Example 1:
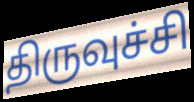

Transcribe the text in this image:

திருவுச்சி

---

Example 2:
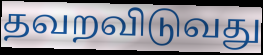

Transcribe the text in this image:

தவறவிடுவது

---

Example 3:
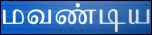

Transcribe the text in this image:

மவண்டிய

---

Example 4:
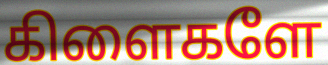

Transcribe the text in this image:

கிளைகளே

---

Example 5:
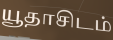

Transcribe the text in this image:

யூதாசிடம்